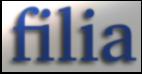
filia